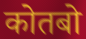
कोतबो